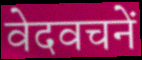
वेदवचनें